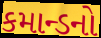
કમાન્ડનો